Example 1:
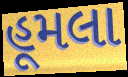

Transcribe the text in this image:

હૂમલા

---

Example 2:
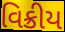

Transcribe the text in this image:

વિક્રીય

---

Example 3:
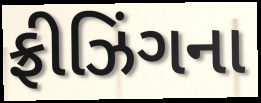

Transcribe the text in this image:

ફ્રીઝિંગના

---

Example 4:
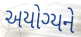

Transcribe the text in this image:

અયોગ્યને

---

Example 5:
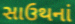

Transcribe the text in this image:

સાઉથનાં